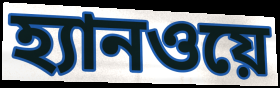
হ্যানওয়ে